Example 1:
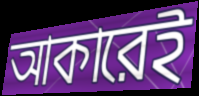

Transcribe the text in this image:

আকারেই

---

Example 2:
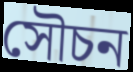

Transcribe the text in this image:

সৌচন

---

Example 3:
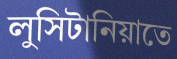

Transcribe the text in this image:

লুসিটানিয়াতে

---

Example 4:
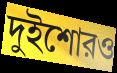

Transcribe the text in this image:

দুইশোরও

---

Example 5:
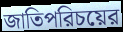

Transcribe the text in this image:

জাতিপরিচয়ের